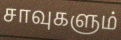
சாவுகளும்